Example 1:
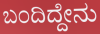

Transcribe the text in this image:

ಬಂದಿದ್ದೇನು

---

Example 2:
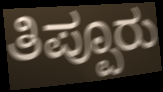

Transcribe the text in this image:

ತಿಪ್ಪೂರು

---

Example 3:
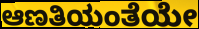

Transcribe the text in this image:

ಆಣತಿಯಂತೆಯೇ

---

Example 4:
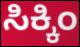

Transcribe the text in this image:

ಸಿಕ್ಕಿಂ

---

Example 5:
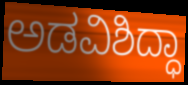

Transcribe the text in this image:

ಅಡವಿಶಿದ್ಧಾ